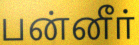
பன்னீர்